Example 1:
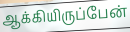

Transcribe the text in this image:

ஆக்கியிருப்பேன்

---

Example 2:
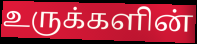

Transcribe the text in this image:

உருக்களின்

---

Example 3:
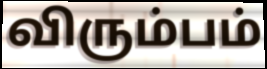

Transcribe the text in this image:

விரும்பம்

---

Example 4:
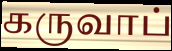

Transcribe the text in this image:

கருவாப்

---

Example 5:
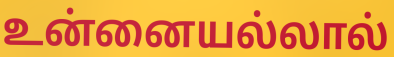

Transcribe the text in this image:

உன்னையல்லால்